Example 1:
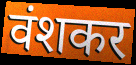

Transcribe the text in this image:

वंशकर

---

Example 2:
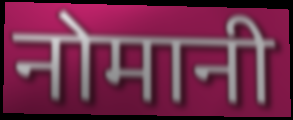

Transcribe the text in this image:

नोमानी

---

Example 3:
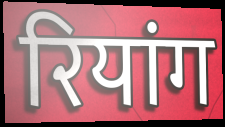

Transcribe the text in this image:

रियांग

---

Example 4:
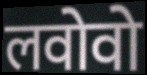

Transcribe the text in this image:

लवोवो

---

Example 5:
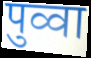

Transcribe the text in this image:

पुव्वा